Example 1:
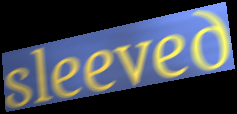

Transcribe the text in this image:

sleeved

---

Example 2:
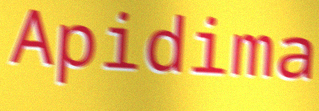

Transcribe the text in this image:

Apidima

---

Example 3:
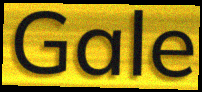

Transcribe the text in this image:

Gale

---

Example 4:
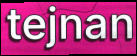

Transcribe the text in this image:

tejnan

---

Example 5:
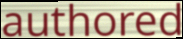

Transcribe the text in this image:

authored